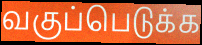
வகுப்பெடுக்க